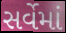
સર્વેમાં